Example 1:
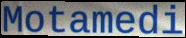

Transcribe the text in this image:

Motamedi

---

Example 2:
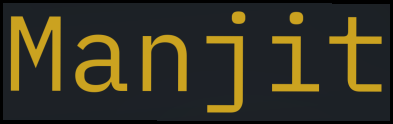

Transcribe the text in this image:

Manjit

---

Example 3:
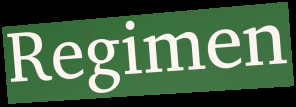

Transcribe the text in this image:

Regimen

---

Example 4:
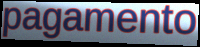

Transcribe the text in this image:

pagamento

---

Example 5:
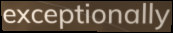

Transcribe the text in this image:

exceptionally